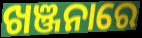
ଖଞ୍ଜନାରେ